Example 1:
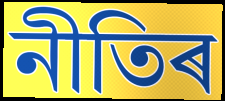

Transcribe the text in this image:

নীতিৰ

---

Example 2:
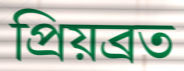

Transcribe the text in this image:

প্ৰিয়ব্ৰত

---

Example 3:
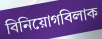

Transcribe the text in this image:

বিনিয়োগবিলাক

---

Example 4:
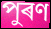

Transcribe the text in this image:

পুৰণ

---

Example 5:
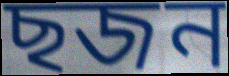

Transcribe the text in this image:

ছজন